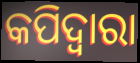
କପିଦ୍ୱାରା